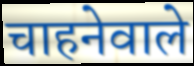
चाहनेवाले